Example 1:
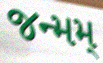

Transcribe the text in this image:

જન્મમ્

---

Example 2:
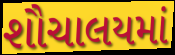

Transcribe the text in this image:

શૌચાલયમાં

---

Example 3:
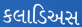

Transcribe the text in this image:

કલાડિઅસ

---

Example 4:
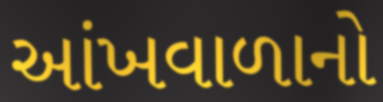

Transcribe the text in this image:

આંખવાળાનો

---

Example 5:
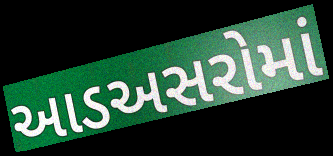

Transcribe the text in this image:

આડઅસરોમાં